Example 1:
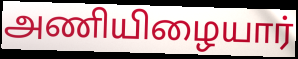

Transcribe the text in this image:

அணியிழையார்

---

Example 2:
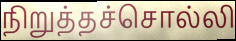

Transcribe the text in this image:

நிறுத்தச்சொல்லி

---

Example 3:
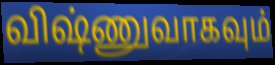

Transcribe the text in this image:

விஷ்ணுவாகவும்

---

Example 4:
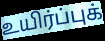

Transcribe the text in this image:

உயிர்ப்புக்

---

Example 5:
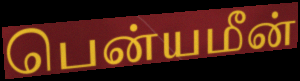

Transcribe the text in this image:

பென்யமீன்